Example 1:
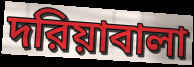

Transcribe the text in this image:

দরিয়াবালা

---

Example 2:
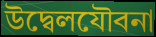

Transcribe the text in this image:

উদ্বেলযৌবনা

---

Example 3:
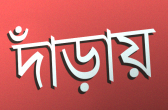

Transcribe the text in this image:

দাঁড়ায়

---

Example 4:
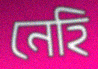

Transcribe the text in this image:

নেহি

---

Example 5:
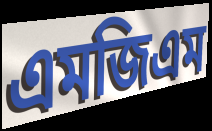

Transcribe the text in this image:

এমজিএম